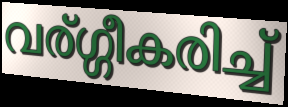
വര്ഗ്ഗീകരിച്ച്